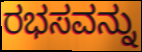
ರಭಸವನ್ನು